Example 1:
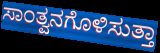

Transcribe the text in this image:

ಸಾಂತ್ವನಗೊಳಿಸುತ್ತಾ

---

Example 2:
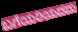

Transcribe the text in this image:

ಬಗೆಯರಿಯದದು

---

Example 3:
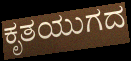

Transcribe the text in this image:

ಕೃತಯುಗದ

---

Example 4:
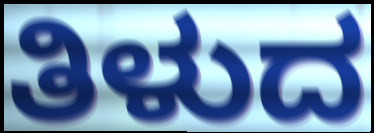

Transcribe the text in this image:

ತಿಳುದ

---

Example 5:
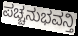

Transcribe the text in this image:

ಪಚ್ಚನುಭವನ್ತಿ